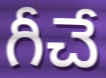
గీచే